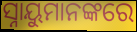
ସ୍ନାୟୁମାନଙ୍କରେ